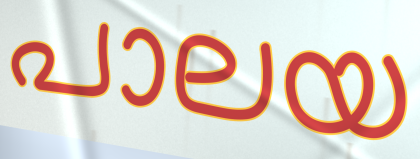
പാലയ